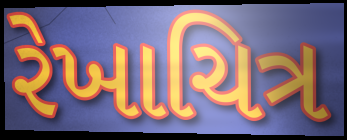
રેખાચિત્ર